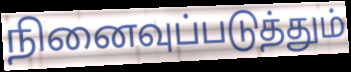
நினைவுப்படுத்தும்